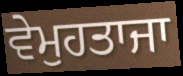
ਵੇਮੁਹਤਾਜਾ